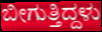
ಬೀಗುತ್ತಿದ್ದಳು